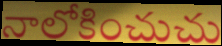
నాలోకించుచు